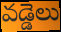
వడ్డెలు